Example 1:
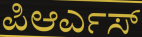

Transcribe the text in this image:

ಪಿಆರ್ಎಸ್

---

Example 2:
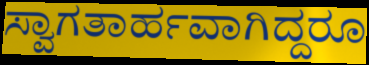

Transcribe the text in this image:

ಸ್ವಾಗತಾರ್ಹವಾಗಿದ್ದರೂ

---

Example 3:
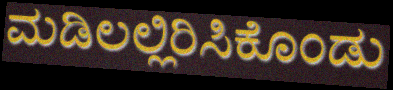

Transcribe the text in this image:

ಮಡಿಲಲ್ಲಿರಿಸಿಕೊಂಡು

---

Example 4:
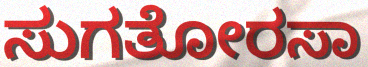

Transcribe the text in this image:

ಸುಗತೋರಸಾ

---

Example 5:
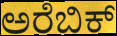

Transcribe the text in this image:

ಅರೆಬಿಕ್